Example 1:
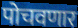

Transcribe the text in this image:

पोचवणार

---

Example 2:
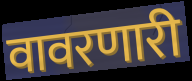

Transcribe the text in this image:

वावरणारी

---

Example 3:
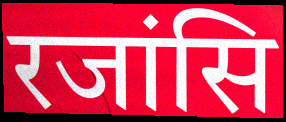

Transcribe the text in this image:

रजांसि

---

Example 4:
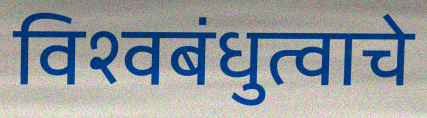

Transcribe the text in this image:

विश्वबंधुत्वाचे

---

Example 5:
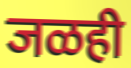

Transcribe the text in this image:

जळही